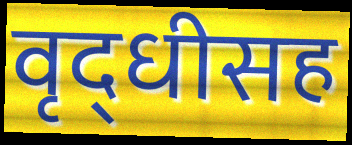
वृद्धीसह